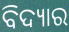
ବିଦ୍ୟାର